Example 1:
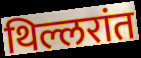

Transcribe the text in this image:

थिल्लरांत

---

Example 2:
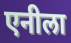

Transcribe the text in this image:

एनीला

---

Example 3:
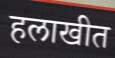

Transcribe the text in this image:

हलाखीत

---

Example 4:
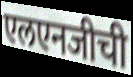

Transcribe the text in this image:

एलएनजीची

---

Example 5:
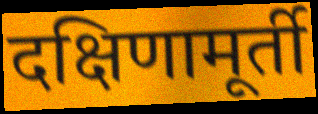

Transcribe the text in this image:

दक्षिणामूर्ती